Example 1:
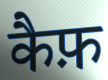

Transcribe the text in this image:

कैफ़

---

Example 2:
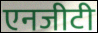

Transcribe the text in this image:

एनजीटी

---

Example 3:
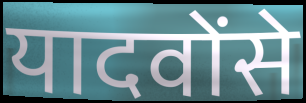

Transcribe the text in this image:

यादवोंसे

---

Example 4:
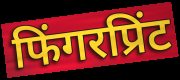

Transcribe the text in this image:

फिंगरप्रिंट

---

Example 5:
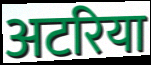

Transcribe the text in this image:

अटरिया